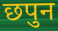
छपुन